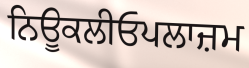
ਨਿਊਕਲੀਓਪਲਾਜ਼ਮ